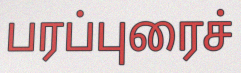
பரப்புரைச்